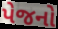
પેજનો